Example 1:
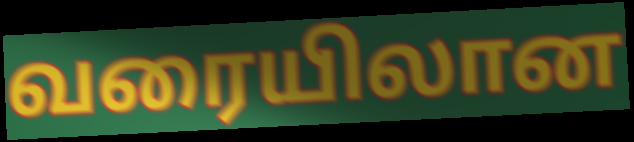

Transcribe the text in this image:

வரையிலான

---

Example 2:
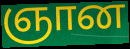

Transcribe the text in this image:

ஞான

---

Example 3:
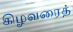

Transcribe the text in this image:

கிழவரைத்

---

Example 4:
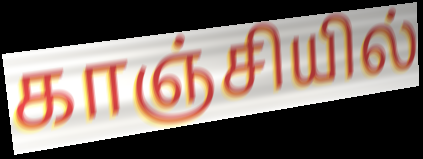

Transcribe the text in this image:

காஞ்சியில்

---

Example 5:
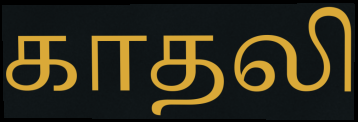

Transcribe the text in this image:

காதலி